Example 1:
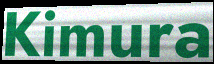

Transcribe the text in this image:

Kimura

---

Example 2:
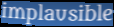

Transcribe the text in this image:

implausible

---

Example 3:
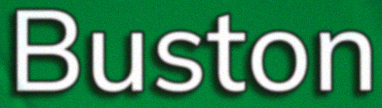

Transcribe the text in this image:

Buston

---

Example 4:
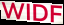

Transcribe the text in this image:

WIDF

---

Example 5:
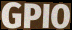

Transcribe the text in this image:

GPIO